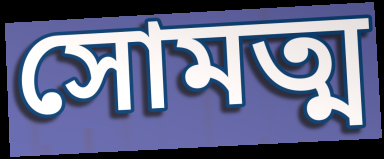
সোমত্ম